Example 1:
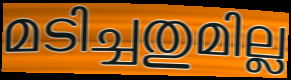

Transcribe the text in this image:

മടിച്ചതുമില്ല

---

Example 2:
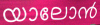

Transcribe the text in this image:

യാലോൻ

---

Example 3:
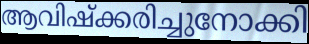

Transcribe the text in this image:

ആവിഷ്ക്കരിച്ചുനോക്കി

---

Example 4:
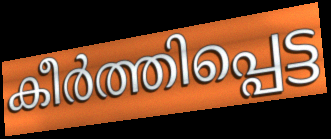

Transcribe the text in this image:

കീർത്തിപ്പെട്ട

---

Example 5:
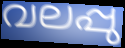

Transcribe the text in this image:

വലപ്പു